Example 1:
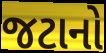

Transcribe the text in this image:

જટાનો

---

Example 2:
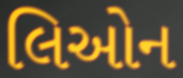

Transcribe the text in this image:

લિઓન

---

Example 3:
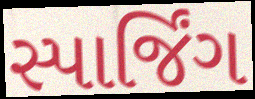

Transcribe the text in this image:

સ્પાર્જિંગ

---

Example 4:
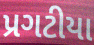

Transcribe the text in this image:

પ્રગટીયા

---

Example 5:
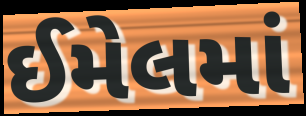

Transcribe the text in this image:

ઈમેલમાં